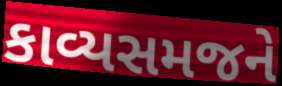
કાવ્યસમજને